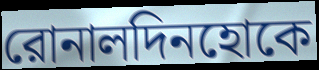
রোনালদিনহোকে